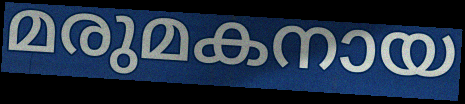
മരുമകനായ